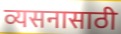
व्यसनासाठी